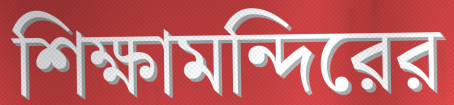
শিক্ষামন্দিরের